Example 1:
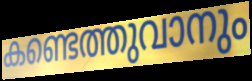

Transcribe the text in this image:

കണ്ടെത്തുവാനും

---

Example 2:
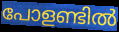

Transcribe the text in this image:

പോളണ്ടിൽ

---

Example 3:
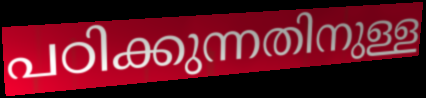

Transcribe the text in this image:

പഠിക്കുന്നതിനുള്ള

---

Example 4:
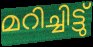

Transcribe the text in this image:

മറിച്ചിട്ടു്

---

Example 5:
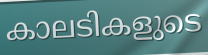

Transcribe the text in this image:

കാലടികളുടെ